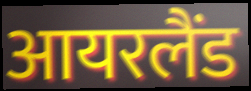
आयरलैंड